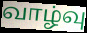
வாழ்வு